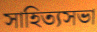
সাহিত্যসভা